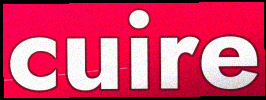
cuire